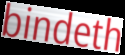
bindeth